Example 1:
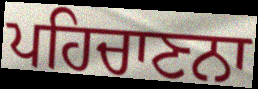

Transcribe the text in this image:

ਪਹਿਚਾਣਨਾ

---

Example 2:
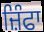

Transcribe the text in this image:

ਜ਼ਿੰਫਾ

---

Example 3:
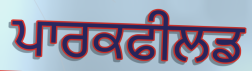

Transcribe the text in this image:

ਪਾਰਕਫੀਲਡ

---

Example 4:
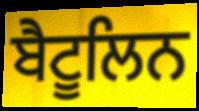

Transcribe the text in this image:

ਬੈਟੂਲਿਨ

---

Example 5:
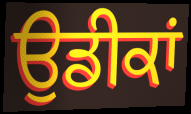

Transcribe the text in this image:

ਉਡੀਕਾਂ